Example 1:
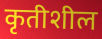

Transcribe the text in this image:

कृतीशील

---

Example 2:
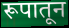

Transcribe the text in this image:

रूपातून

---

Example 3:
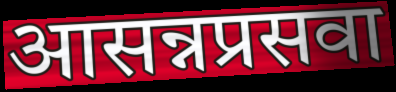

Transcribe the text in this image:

आसन्नप्रसवा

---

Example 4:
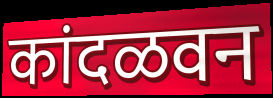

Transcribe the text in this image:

कांदळवन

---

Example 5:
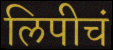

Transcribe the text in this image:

लिपीचं